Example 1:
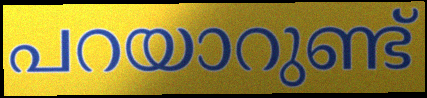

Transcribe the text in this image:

പറയാറുണ്ട്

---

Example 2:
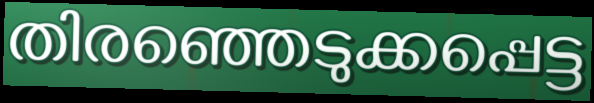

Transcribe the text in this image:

തിരഞ്ഞെടുക്കപ്പെട്ട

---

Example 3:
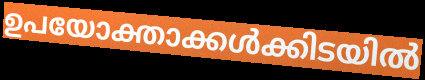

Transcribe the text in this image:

ഉപയോക്താക്കൾക്കിടയിൽ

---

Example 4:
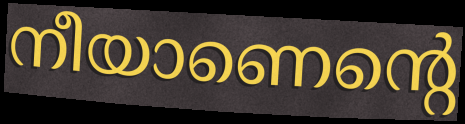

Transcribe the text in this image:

നീയാണെന്റെ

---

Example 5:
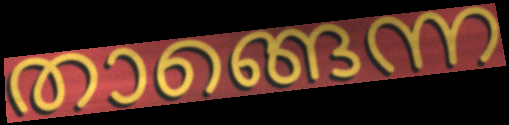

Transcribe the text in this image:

താങ്ങെന്ന